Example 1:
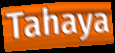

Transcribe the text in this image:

Tahaya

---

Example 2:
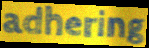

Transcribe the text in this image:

adhering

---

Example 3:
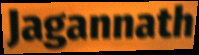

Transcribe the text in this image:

Jagannath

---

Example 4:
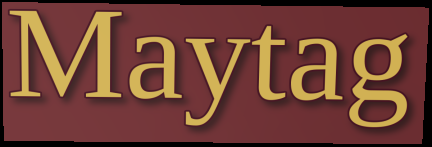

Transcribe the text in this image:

Maytag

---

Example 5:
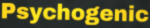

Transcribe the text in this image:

Psychogenic